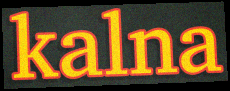
kalna